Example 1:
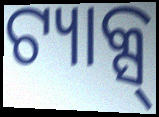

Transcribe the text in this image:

ଟ୍ୟାକ୍ସ୍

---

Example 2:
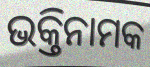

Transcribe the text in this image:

ଭକ୍ତିନାମକ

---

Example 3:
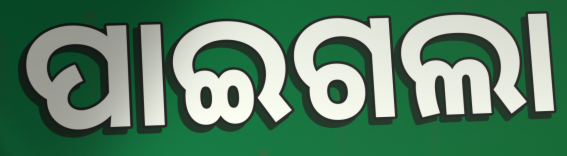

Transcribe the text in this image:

ପାଇଗଲା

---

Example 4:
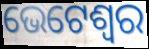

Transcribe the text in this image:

ଭେଟେଶ୍ୱର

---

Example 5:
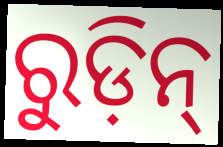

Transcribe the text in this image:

ରୁଡ଼ିନ୍